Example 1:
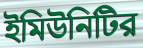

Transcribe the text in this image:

ইমিউনিটির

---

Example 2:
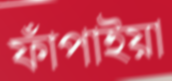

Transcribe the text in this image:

ফাঁপাইয়া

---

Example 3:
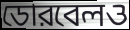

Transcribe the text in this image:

ডোরবেলও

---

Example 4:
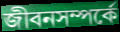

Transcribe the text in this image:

জীবনসম্পর্কে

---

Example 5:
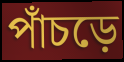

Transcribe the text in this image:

পাঁচড়ে